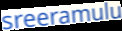
sreeramulu